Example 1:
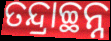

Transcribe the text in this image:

ତନ୍ଦ୍ରାଚ୍ଛନ୍ନ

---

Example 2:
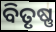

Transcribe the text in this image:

ବିତୃଷ୍ଣ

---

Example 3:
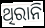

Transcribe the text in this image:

ଥିରାନି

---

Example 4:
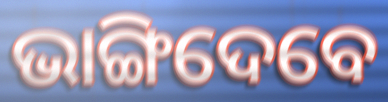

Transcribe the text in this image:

ଭାଙ୍ଗିଦେବେ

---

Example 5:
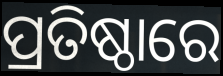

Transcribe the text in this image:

ପ୍ରତିଷ୍ଠାରେ